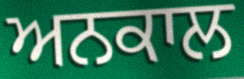
ਅਨਕਾਲ